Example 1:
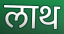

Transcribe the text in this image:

लाथ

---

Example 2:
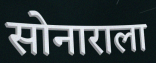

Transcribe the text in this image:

सोनाराला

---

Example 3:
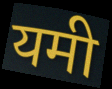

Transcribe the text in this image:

यमी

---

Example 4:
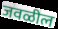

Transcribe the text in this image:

जवळील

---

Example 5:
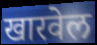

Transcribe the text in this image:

खारवेल